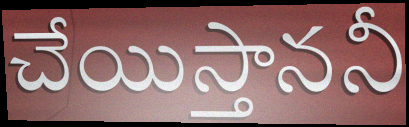
చేయిస్తాననీ